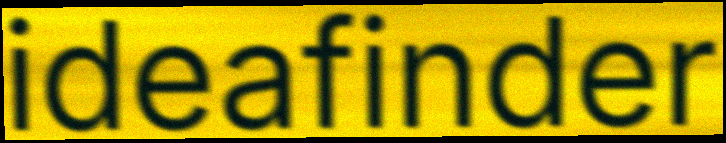
ideafinder